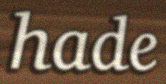
hade